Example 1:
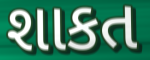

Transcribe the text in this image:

શાકત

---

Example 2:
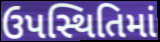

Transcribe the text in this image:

ઉપસ્થિતિમાં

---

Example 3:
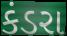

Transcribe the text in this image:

કંડરા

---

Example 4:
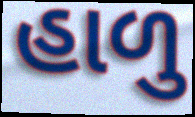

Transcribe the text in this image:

હાળુ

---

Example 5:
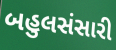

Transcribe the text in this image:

બહુલસંસારી